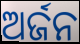
ଅର୍ଜନ